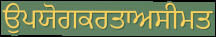
ਉਪਯੋਗਕਰਤਾਅਸੀਮਤ